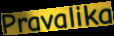
Pravalika